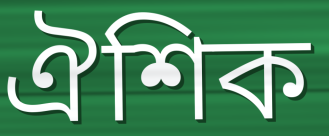
ঐশিক